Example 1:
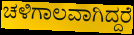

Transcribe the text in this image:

ಚಳಿಗಾಲವಾಗಿದ್ದರೆ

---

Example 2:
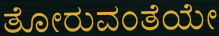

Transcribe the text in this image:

ತೋರುವಂತೆಯೇ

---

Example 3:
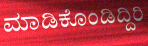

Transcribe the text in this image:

ಮಾಡಿಕೊಂಡಿದ್ದಿರಿ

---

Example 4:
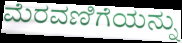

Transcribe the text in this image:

ಮೆರವಣಿಗೆಯನ್ನು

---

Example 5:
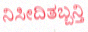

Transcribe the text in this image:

ನಿಸೀದಿತಬ್ಬನ್ತಿ